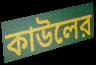
কাউলের